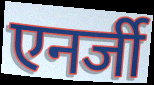
एनर्जी